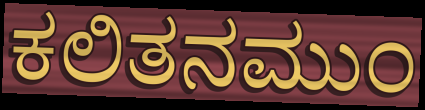
ಕಲಿತನಮುಂ